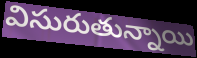
విసురుతున్నాయి